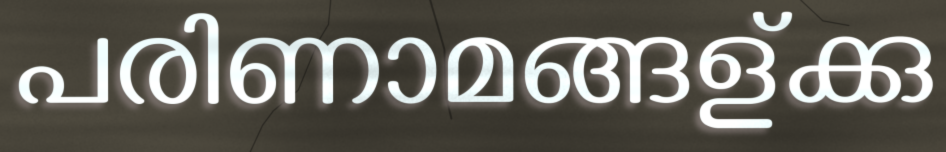
പരിണാമങ്ങള്ക്കു